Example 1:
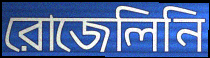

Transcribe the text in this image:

রোজেলিনি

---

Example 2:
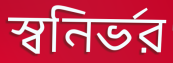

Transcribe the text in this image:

স্বনির্ভর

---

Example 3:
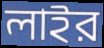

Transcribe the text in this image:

লাইর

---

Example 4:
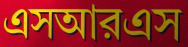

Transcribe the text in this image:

এসআরএস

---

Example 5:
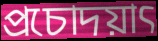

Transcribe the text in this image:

প্রচোদয়াৎ